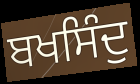
ਬਖਸਿੰਦੁ